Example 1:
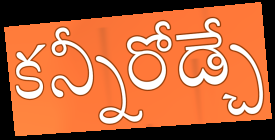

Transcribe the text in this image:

కన్నీరోడ్చే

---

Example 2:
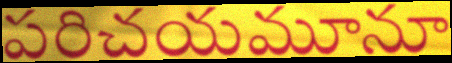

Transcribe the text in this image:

పరిచయమూనూ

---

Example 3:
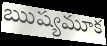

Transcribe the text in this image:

ఋష్యమూక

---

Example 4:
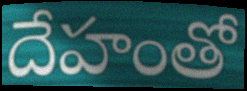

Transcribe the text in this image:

దేహంతో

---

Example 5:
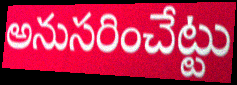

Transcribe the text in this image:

అనుసరించేట్టు